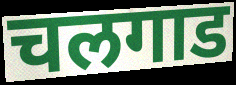
चलगाड